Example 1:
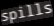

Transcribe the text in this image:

spills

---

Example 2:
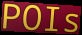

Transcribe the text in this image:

POIs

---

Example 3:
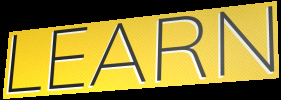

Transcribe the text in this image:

LEARN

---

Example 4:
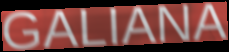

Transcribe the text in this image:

GALIANA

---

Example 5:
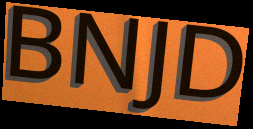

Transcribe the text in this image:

BNJD